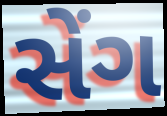
સેંગ